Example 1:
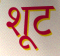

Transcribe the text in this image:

शूट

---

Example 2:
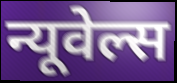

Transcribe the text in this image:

न्यूवेल्स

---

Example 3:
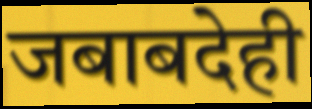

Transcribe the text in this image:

जबाबदेही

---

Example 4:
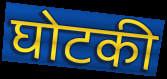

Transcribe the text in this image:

घोटकी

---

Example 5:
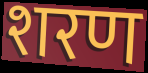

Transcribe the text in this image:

शरण